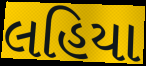
લહિયા